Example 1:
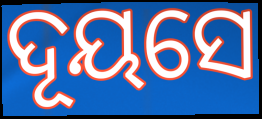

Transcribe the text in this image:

ଦୂୟସେ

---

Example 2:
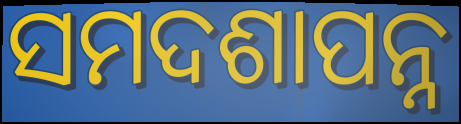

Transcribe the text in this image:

ସମଦଶାପନ୍ନ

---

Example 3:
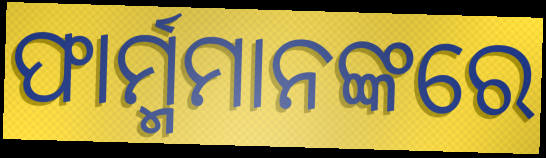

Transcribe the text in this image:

ଫାର୍ମ୍ମମାନଙ୍କରେ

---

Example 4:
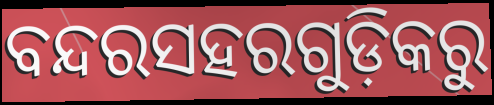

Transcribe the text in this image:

ବନ୍ଦରସହରଗୁଡ଼ିକରୁ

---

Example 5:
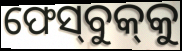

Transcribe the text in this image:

ଫେସ୍‌ବୁକ୍‌କୁ